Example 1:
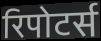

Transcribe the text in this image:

रिपोटर्स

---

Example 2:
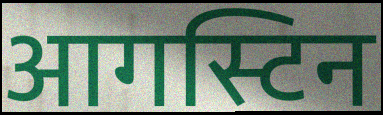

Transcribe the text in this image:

आगस्टिन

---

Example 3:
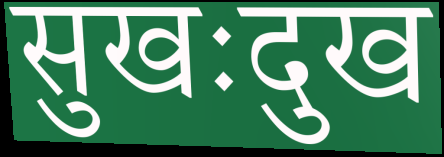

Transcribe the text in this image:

सुखःदुख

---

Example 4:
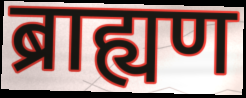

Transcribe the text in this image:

ब्राह्यण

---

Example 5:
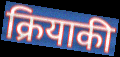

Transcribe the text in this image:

क्रियाकी